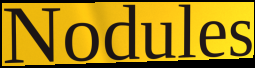
Nodules